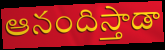
ఆనందిస్తాడా